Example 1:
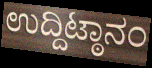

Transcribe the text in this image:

ಉದ್ದಿಟ್ಠಾನಂ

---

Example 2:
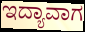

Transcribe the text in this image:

ಇದ್ಯಾವಾಗ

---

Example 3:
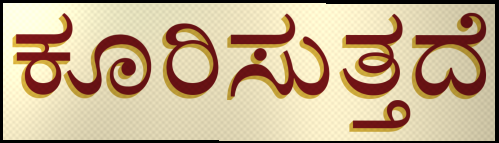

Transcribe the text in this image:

ಕೂರಿಸುತ್ತದೆ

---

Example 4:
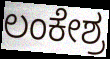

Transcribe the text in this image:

ಲಂಕೇಶ್ರ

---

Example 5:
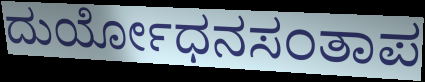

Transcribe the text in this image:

ದುರ್ಯೋಧನಸಂತಾಪ